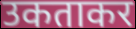
उकताकर